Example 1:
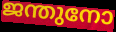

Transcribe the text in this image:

ജന്തുനോ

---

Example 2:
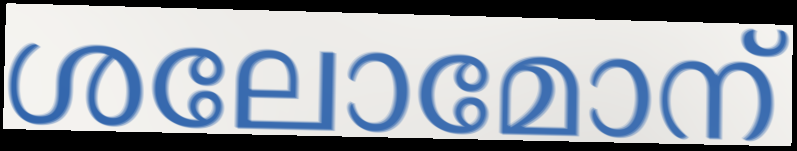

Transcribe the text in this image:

ശലോമോന്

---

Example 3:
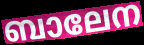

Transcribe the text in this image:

ബാലേന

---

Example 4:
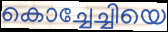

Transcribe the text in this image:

കൊച്ചേച്ചിയെ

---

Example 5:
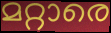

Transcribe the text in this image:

മറ്റാരെ